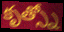
కృత్స్నో